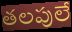
తలపులే